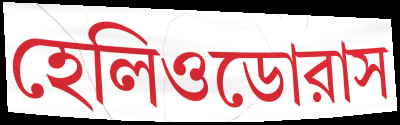
হেলিওডোরাস